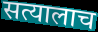
सत्यालाच